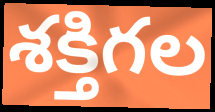
శక్తిగల